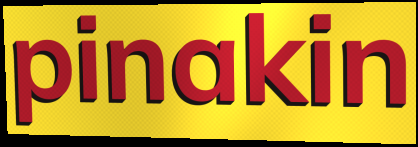
pinakin